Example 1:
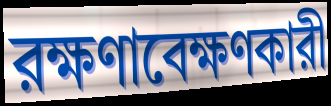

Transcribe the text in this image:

রক্ষণাবেক্ষণকারী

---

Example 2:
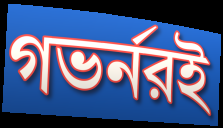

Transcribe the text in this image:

গভর্নরই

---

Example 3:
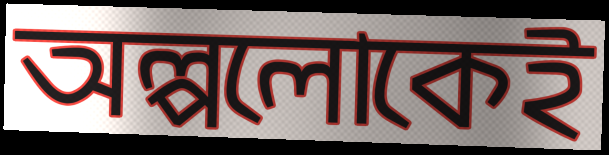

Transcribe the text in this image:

অল্পলোকেই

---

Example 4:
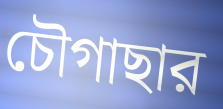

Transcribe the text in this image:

চৌগাছার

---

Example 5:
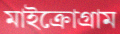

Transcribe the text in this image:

মাইক্রোগ্রাম